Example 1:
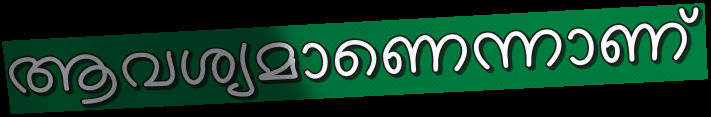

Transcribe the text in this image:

ആവശ്യമാണെന്നാണ്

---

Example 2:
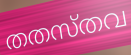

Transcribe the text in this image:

തതസ്തവ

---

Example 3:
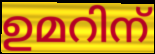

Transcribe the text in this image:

ഉമറിന്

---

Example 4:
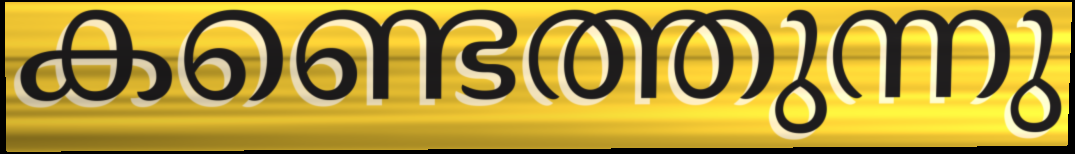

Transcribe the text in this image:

കണ്ടെത്തുന്നു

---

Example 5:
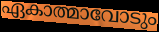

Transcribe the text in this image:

ഏകാത്മാവോടും